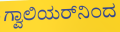
ಗ್ವಾಲಿಯರ್‌ನಿಂದ